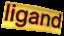
ligand